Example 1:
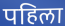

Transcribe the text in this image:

पहिला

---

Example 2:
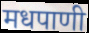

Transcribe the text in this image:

मधपाणी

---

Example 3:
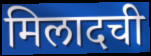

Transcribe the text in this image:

मिलादची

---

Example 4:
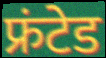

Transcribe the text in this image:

फ्रंटेड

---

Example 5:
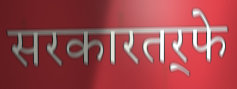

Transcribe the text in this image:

सरकारतर्फे